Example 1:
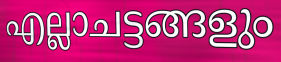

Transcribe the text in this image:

എല്ലാചട്ടങ്ങളും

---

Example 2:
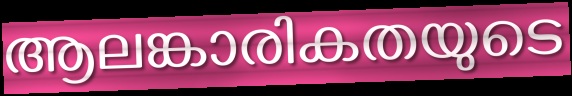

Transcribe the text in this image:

ആലങ്കാരികതയുടെ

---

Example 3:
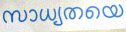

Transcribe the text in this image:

സാധ്യതയെ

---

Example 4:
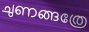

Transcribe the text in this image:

ചുണങ്ങത്രേ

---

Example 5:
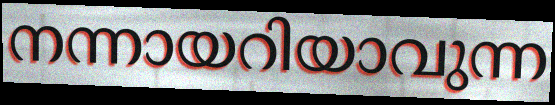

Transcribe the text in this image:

നന്നായറിയാവുന്ന